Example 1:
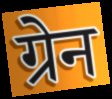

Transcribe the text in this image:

ग्रेन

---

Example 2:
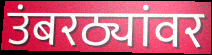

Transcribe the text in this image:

उंबरठ्यांवर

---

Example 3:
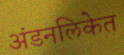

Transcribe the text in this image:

अंडनलिकेत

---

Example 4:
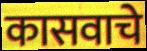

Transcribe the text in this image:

कासवाचे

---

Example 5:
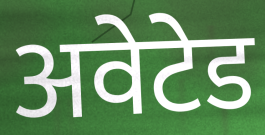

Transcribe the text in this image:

अवेटेड